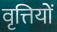
वृत्तियों